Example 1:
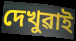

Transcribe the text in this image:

দেখুৱাই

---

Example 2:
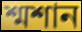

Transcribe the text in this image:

শ্মশান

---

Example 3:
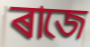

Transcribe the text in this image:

ৰাজে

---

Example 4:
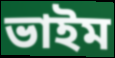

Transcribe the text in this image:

ভাইম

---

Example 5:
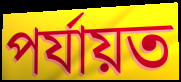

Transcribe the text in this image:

পৰ্যায়ত